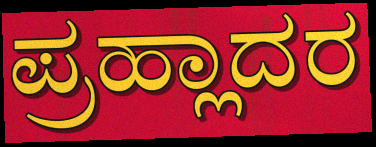
ಪ್ರಹ್ಲಾದರ